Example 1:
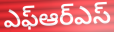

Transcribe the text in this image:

ఎఫ్ఆర్ఎస్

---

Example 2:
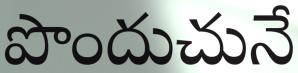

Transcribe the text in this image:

పొందుచునే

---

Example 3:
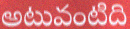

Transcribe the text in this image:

అటువంటిది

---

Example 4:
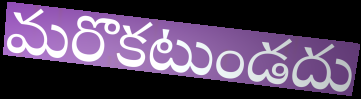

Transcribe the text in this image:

మరొకటుండదు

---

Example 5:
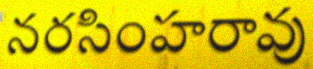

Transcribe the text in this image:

నరసింహరావు